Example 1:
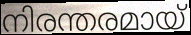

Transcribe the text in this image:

നിരന്തരമായ്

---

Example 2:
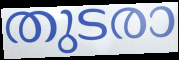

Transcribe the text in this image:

തുടരാ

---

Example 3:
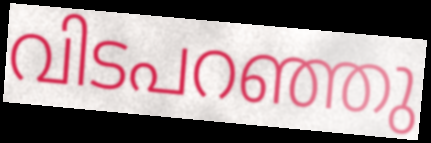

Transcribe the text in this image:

വിടപറഞ്ഞു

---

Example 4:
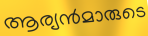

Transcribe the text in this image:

ആര്യൻമാരുടെ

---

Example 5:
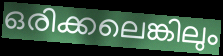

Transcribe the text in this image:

ഒരിക്കലെങ്കിലും